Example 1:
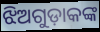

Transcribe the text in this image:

ଝିଅଗୁଡ଼ାକଙ୍କ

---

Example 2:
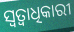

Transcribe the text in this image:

ସ୍ଵତ୍ୱାଧିକାରୀ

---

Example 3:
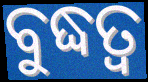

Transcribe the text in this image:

ବୁଦ୍ଧତ୍ୱ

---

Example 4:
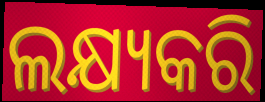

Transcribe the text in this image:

ଲକ୍ଷ୍ୟକରି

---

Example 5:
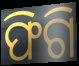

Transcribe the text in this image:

ଫିଗି